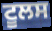
ਟੂਲਸ